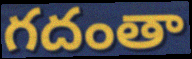
గదంతా